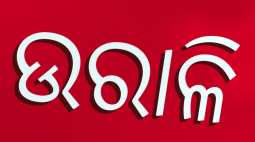
ଉରାଳି